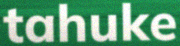
tahuke